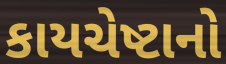
કાયચેષ્ટાનો